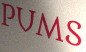
PUMS